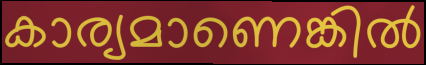
കാര്യമാണെങ്കിൽ